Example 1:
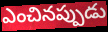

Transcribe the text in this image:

ఎంచినప్పుడు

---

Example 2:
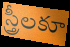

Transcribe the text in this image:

స్త్రీలకూ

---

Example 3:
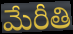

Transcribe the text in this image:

మేరీతి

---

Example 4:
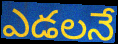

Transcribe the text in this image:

ఎడలనే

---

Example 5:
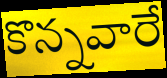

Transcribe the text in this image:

కొన్నవారే